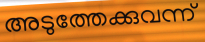
അടുത്തേക്കുവന്ന്